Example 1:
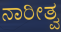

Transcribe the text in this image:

ನಾರೀತ್ವ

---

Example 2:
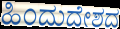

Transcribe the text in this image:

ಹಿಂದುದೇಶದ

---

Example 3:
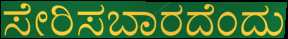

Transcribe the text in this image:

ಸೇರಿಸಬಾರದೆಂದು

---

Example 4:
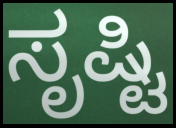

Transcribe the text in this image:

ಸೃಷ್ಟಿ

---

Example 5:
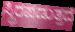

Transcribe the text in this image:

ಸ್ಥಿರಪಡುತ್ತದೆ